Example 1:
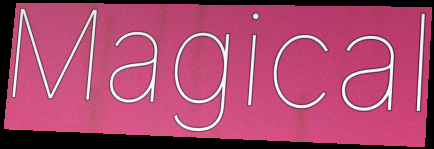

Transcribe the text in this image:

Magical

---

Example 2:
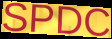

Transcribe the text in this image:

SPDC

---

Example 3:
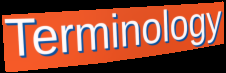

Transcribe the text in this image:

Terminology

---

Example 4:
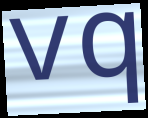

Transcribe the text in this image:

vq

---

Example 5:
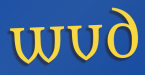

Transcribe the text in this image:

wud